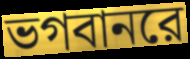
ভগবানরে